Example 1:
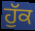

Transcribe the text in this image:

ਹੁੱਕ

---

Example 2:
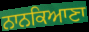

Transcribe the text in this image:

ਨਾਨਕਿਆਣਾ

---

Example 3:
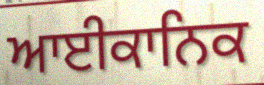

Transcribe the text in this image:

ਆਈਕਾਨਿਕ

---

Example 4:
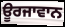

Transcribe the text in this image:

ਊਰਜਾਵਾਨ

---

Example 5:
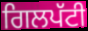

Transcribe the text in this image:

ਗਿਲਪੱਟੀ